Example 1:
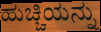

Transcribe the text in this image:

ಹುಚ್ಚಿಯನ್ನು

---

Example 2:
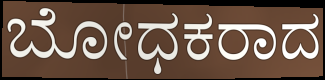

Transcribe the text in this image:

ಬೋಧಕರಾದ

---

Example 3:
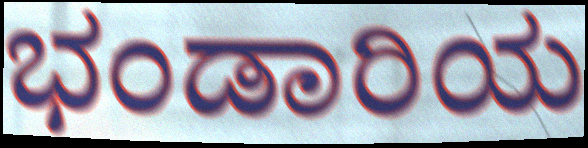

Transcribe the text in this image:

ಭಂಡಾರಿಯ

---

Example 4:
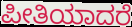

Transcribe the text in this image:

ಪೀತಿಯಾದರೆ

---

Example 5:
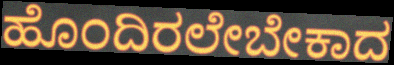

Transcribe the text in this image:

ಹೊಂದಿರಲೇಬೇಕಾದ